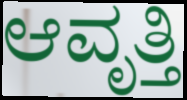
ಆವೃತ್ತಿ